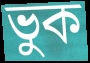
ভুক